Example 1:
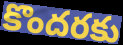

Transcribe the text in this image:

కొందరకు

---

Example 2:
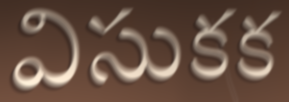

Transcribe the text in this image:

విసుకక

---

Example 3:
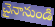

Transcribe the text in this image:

చైనానుండి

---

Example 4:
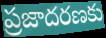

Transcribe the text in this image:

ప్రజాదరణకు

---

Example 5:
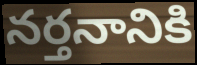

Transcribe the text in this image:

నర్తనానికి